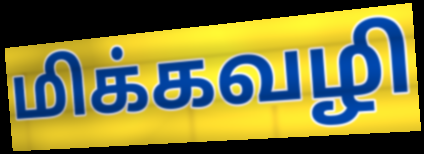
மிக்கவழி